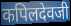
कपिलदेवजी